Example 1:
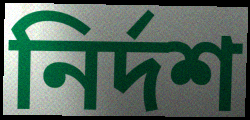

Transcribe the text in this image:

নির্দশ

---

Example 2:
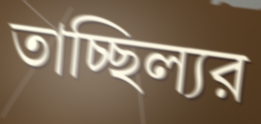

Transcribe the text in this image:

তাচ্ছিল্যর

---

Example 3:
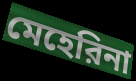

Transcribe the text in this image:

মেহেরিনা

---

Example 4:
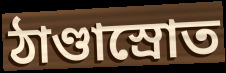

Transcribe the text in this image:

ঠাণ্ডাস্রোত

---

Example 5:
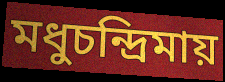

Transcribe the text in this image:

মধুচন্দ্রিমায়